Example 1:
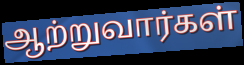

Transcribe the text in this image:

ஆற்றுவார்கள்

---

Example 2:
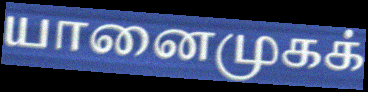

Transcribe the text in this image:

யானைமுகக்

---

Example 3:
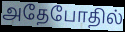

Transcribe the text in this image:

அதேபோதில்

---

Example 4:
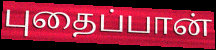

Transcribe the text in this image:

புதைப்பான்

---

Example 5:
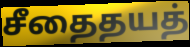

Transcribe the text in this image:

சீதைதயத்